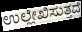
ಉಲ್ಲೇಖಿಸುತ್ತದೆ